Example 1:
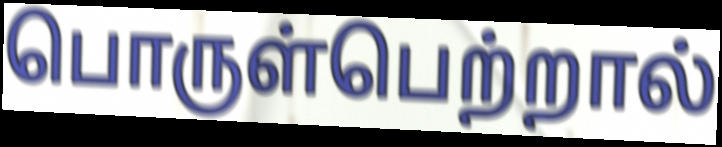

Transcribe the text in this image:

பொருள்பெற்றால்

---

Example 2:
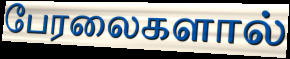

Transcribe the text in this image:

பேரலைகளால்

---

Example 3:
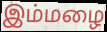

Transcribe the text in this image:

இம்மழை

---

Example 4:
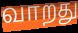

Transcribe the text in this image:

வாறது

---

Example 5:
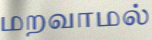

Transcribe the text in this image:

மறவாமல்